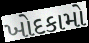
ખોદકામો